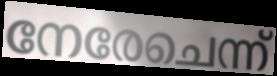
നേരേചെന്ന്